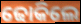
ଢୋକିଲେ